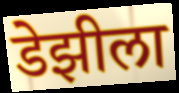
डेझीला